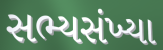
સભ્યસંખ્યા